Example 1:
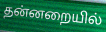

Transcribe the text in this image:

தன்னறையில்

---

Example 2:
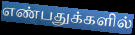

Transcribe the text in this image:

எண்பதுக்களில்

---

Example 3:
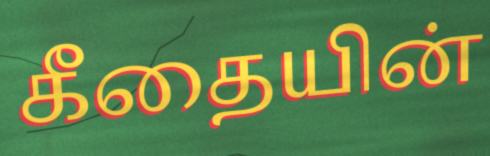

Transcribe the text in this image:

கீதையின்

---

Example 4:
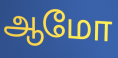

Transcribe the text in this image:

ஆமோ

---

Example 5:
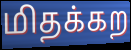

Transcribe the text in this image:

மிதக்கற